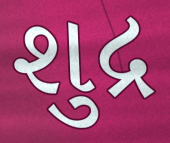
શુદ્ર